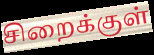
சிறைக்குள்